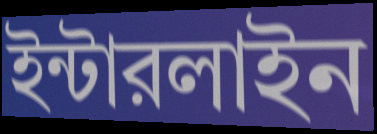
ইন্টারলাইন